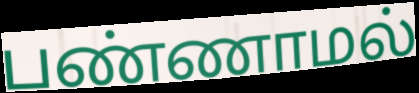
பண்ணாமல்